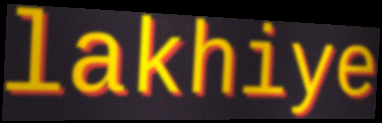
lakhiye